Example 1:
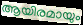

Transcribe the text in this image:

ആയിരമായും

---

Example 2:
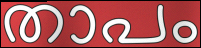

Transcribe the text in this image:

താപം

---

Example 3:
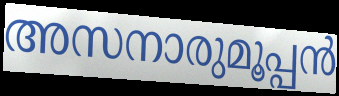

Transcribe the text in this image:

അസനാരുമൂപ്പൻ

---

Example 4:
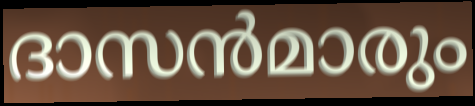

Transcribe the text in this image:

ദാസൻമാരും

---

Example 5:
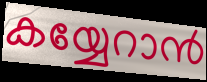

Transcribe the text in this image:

കയ്യേറാൻ